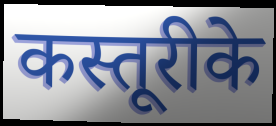
कस्तूरीके